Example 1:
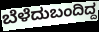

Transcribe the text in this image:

ಬೆಳೆದುಬಂದಿದ್ದ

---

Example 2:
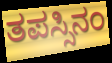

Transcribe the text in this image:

ತಪಸ್ಸಿನಂ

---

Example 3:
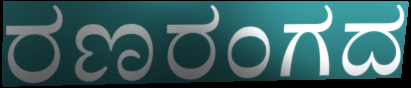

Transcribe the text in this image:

ರಣರಂಗದ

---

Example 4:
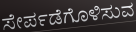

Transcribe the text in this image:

ಸೇರ್ಪಡೆಗೊಳಿಸುವ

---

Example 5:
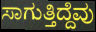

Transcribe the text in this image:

ಸಾಗುತ್ತಿದ್ದೆವು